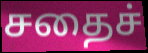
சதைச்